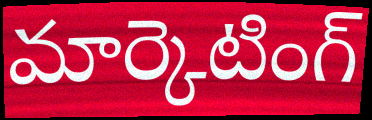
మార్కెటింగ్